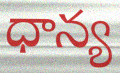
ధాన్య